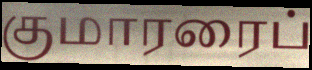
குமாரரைப்